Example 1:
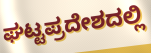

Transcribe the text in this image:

ಘಟ್ಟಪ್ರದೇಶದಲ್ಲಿ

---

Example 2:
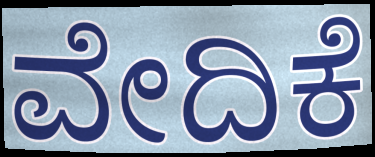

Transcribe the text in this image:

ವೇದಿಕೆ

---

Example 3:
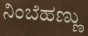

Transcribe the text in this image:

ನಿಂಬೆಹಣ್ಣು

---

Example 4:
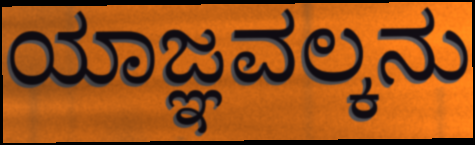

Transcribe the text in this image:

ಯಾಜ್ಞವಲ್ಕನು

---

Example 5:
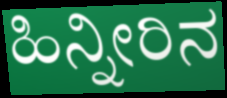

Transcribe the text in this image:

ಹಿನ್ನೀರಿನ